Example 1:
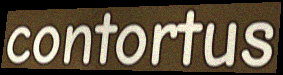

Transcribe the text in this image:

contortus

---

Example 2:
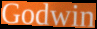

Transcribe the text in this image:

Godwin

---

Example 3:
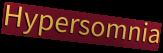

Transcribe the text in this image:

Hypersomnia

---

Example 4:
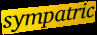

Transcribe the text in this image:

sympatric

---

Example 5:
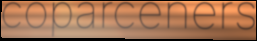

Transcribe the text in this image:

coparceners